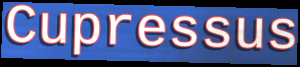
Cupressus